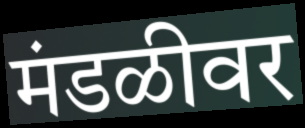
मंडळीवर